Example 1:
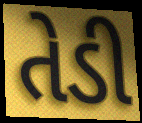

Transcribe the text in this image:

તેડી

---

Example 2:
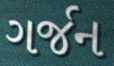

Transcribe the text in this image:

ગર્જન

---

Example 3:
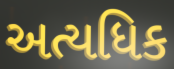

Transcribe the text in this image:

અત્યધિક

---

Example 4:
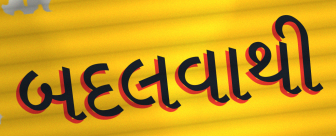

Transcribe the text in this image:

બદલવાથી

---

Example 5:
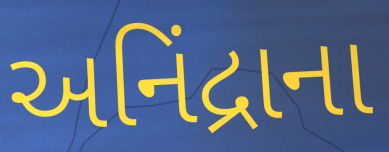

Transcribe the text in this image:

અનિંદ્રાના